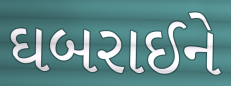
ઘબરાઈને